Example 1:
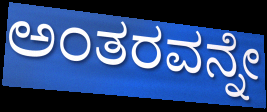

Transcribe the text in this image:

ಅಂತರವನ್ನೇ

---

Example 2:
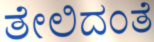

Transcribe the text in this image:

ತೇಲಿದಂತೆ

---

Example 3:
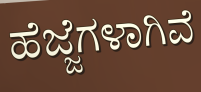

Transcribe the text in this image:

ಹೆಜ್ಜೆಗಳಾಗಿವೆ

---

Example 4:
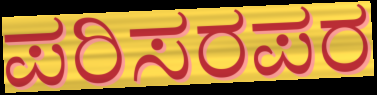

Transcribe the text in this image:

ಪರಿಸರಪರ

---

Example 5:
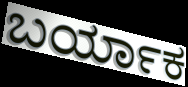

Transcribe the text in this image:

ಬರ್ಯಾಕ